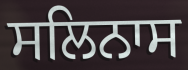
ਸਲਿਨਾਸ